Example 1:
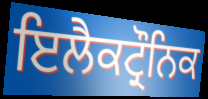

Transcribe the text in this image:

ਇਲੈਕਟ੍ਰੌਨਿਕ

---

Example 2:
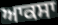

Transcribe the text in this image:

ਆਕਸਾ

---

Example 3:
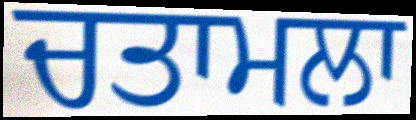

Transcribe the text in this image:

ਚਤਾਮਲਾ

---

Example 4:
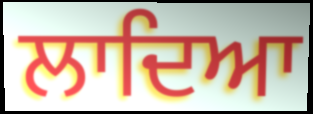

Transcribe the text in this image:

ਲਾਦਿਆ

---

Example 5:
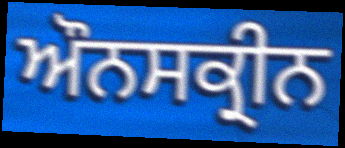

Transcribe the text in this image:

ਔਨਸਕ੍ਰੀਨ